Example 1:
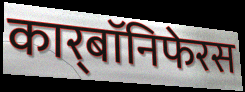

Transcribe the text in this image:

कार्‌बॉनिफेरस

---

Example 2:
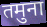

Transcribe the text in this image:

तमुना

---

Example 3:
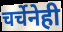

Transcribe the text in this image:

चर्चेनेही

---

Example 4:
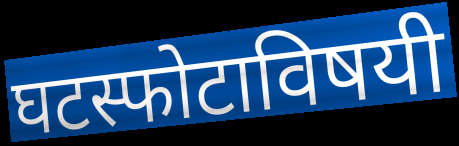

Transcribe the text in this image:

घटस्फोटाविषयी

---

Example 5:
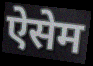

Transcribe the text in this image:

ऐसेम